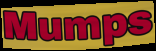
Mumps